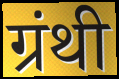
ग्रंथी